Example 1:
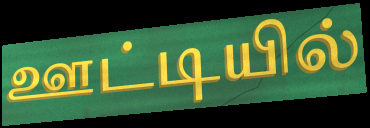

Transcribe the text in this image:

ஊட்டியில்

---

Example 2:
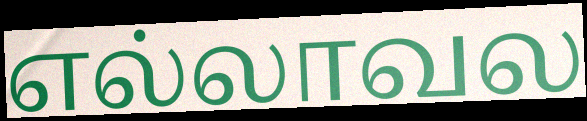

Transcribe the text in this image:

எல்லாவல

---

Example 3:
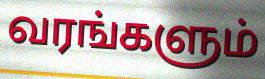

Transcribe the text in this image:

வரங்களும்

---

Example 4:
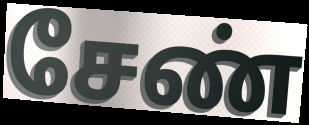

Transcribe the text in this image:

சேண்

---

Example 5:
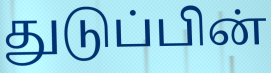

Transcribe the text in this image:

துடுப்பின்